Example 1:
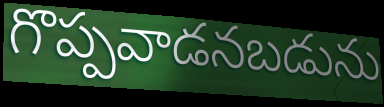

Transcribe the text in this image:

గొప్పవాడనబడును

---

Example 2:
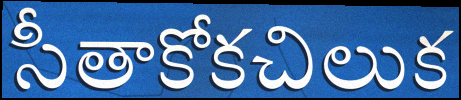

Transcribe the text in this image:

సీతాకోకచిలుక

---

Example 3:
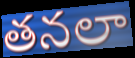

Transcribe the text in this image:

తనలా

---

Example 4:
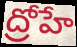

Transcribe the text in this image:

ద్రోహే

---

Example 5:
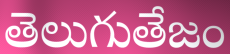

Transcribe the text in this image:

తెలుగుతేజం